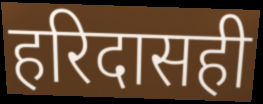
हरिदासही